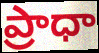
ప్రాధా